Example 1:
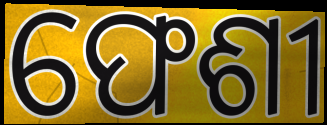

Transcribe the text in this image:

ଫେଶୀ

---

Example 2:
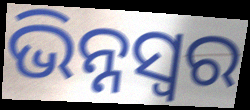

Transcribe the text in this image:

ଭିନ୍ନସ୍ବର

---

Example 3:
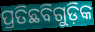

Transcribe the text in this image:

ପ୍ରତିଛବିଗୁଡ଼ିକ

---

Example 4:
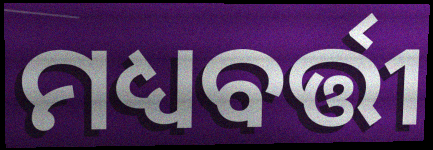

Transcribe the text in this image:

ମଧ୍ୟବର୍ତ୍ତୀ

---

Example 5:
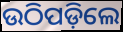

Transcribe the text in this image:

ଉଠିପଡ଼ିଲେ